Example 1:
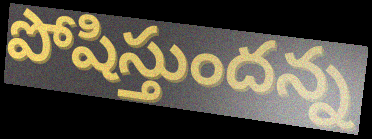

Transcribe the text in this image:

పోషిస్తుందన్న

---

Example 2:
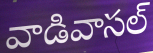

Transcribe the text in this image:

వాడివాసల్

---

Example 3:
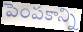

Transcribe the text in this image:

పెంపకాన్ని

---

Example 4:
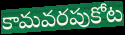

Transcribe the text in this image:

కామవరపుకోట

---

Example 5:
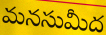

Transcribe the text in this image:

మనసుమీద